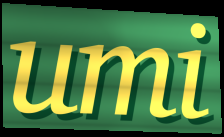
umi